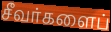
சீவர்களைப்